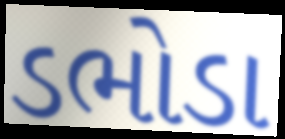
ડભોડા